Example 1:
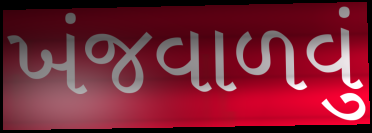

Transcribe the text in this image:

ખંજવાળવું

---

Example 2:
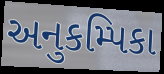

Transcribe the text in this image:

અનુકમ્પિકા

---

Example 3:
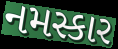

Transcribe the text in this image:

નમસ્કાર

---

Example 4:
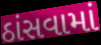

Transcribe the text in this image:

ઠાંસવામાં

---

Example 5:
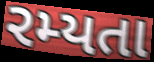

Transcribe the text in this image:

રમ્યતા